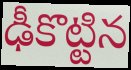
ఢీకొట్టిన